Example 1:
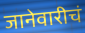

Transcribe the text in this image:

जानेवारीचं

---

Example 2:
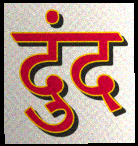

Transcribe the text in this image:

दुंद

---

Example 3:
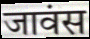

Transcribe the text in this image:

जावंस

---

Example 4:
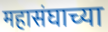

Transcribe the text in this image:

महासंघाच्या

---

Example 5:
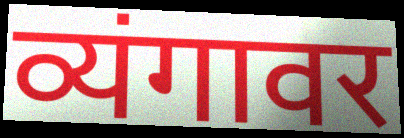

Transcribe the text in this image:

व्यंगावर